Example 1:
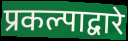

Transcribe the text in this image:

प्रकल्पाद्वारे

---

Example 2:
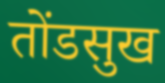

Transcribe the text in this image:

तोंडसुख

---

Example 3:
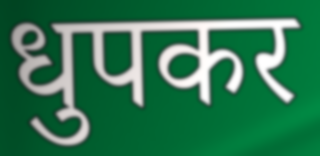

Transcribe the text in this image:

धुपकर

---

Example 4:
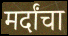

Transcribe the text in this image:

मर्दांचा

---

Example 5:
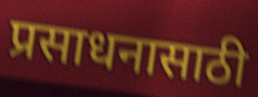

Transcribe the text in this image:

प्रसाधनासाठी